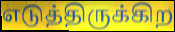
எடுத்திருக்கிற